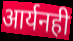
आर्यनही